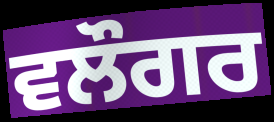
ਵਲੌਗਰ